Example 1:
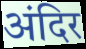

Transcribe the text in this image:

अंदिर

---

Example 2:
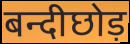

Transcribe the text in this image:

बन्दीछोड़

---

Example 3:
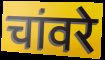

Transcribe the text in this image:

चांवरे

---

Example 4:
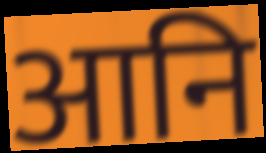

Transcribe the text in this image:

आनि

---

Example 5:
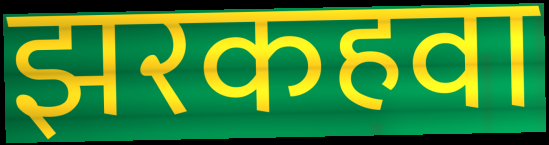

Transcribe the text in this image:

झरकहवा